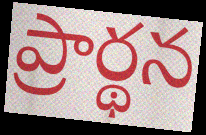
ప్రార్థన